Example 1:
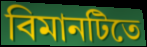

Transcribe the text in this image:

বিমানটিতে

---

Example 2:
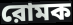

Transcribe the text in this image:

রোমক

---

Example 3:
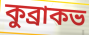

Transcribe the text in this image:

কুব্রাকভ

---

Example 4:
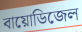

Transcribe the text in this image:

বায়োডিজেল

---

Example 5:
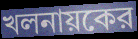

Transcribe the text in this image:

খলনায়কের